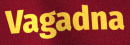
Vagadna